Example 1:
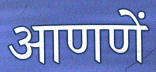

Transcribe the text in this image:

आणणें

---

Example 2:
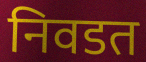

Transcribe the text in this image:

निवडत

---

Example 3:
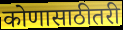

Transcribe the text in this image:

कोणासाठीतरी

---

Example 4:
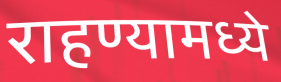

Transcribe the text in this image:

राहण्यामध्ये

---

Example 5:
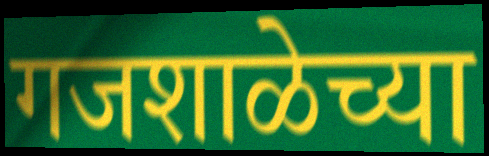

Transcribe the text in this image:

गजशाळेच्या